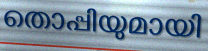
തൊപ്പിയുമായി